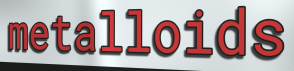
metalloids